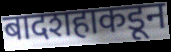
बादशहाकडून